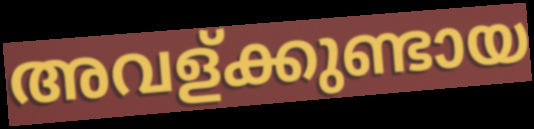
അവള്ക്കുണ്ടായ